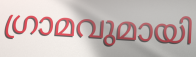
ഗ്രാമവുമായി